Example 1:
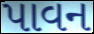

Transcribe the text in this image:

પાવન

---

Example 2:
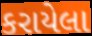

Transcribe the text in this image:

કરાયેલા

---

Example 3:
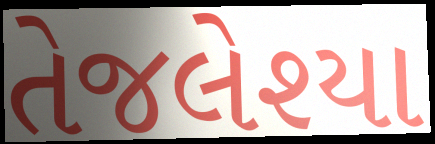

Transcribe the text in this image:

તેજલેશ્યા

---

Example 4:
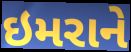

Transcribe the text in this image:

ઇમરાને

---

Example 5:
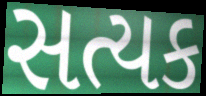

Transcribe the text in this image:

સત્યક